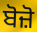
ਬੋਜ਼ੋ